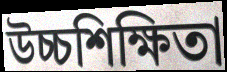
উচ্চশিক্ষিতা